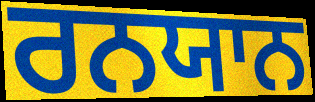
ਰਨਯਾਨ